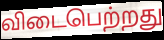
விடைபெற்றது